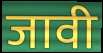
जावी